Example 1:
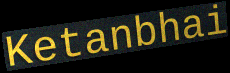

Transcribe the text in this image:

Ketanbhai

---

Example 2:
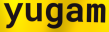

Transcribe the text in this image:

yugam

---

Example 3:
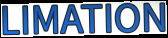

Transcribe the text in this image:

LIMATION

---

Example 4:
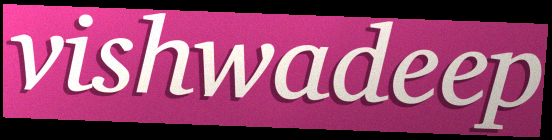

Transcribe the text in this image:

vishwadeep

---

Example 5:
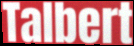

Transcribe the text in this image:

Talbert